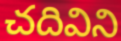
చదివిని